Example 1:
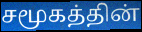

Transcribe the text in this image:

சமூகத்தின்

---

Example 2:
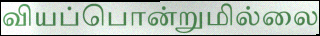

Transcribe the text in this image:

வியப்பொன்றுமில்லை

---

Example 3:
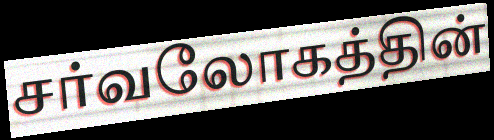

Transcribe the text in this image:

சர்வலோகத்தின்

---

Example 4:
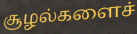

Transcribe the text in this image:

சூழல்களைச்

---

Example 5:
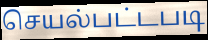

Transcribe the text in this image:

செயல்பட்டபடி